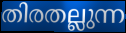
തിരതല്ലുന്ന